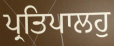
ਪ੍ਰਤਿਪਾਲਹੁ